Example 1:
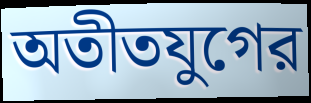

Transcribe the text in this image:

অতীতযুগের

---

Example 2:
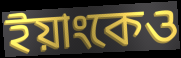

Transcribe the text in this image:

ইয়াংকেও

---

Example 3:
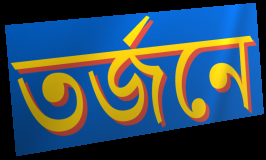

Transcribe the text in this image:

তর্জনে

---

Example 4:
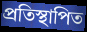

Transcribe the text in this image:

প্রতিস্থাপিত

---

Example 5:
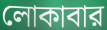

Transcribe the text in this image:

লোকাবার